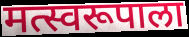
मत्स्वरूपाला